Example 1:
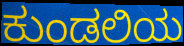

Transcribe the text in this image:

ಕುಂಡಲಿಯ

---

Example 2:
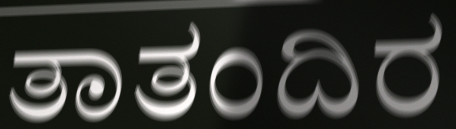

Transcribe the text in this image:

ತಾತಂದಿರ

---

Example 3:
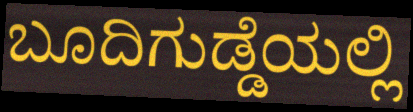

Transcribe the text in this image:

ಬೂದಿಗುಡ್ಡೆಯಲ್ಲಿ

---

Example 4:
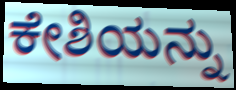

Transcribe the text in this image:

ಕೇಶಿಯನ್ನು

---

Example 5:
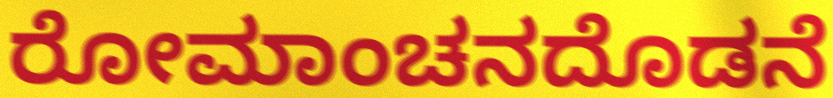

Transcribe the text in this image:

ರೋಮಾಂಚನದೊಡನೆ